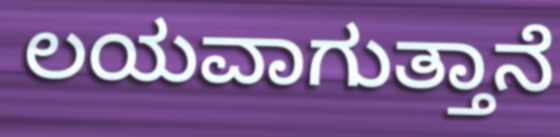
ಲಯವಾಗುತ್ತಾನೆ